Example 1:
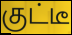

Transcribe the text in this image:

குட்டீ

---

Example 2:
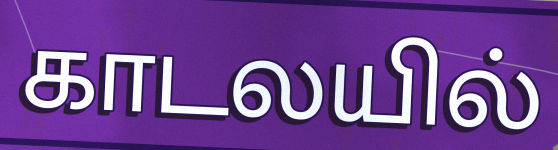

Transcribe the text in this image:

காடலயில்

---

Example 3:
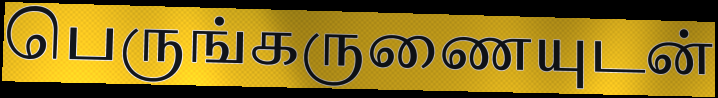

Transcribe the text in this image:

பெருங்கருணையுடன்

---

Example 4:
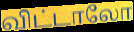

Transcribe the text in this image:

விட்டாலோ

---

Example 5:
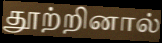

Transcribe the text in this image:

தூற்றினால்